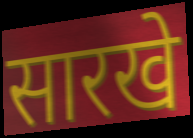
सारखे